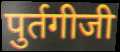
पुर्तगीजी